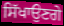
ਸਿੱਖਾਉਣਗੇ